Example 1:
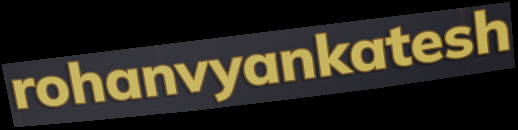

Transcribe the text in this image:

rohanvyankatesh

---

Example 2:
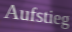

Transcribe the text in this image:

Aufstieg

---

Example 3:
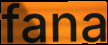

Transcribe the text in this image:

fana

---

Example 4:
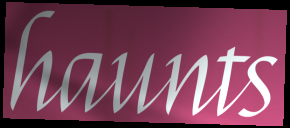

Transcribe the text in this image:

haunts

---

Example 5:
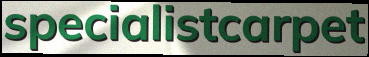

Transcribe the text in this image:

specialistcarpet